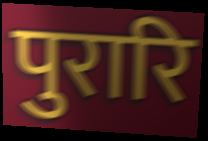
पुरारि